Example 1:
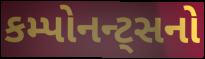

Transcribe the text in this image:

કમ્પોનન્ટ્સનો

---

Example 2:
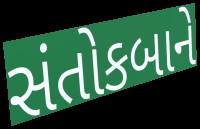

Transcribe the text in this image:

સંતોકબાને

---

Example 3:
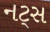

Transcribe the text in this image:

નટ્સ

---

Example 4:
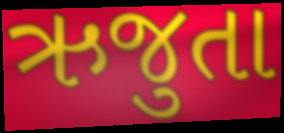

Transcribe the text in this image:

ઋજુતા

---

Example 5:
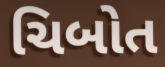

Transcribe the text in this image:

ચિબોત